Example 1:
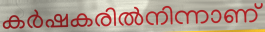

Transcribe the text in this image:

കർഷകരിൽനിന്നാണ്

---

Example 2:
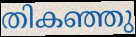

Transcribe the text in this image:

തികഞ്ഞു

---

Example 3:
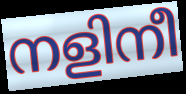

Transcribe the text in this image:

നളിനീ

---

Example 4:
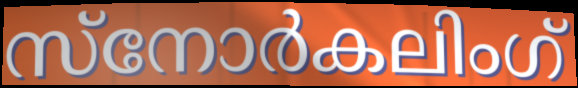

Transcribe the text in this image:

സ്നോർകലിംഗ്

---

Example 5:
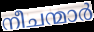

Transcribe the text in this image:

നീചന്മാർ